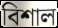
বিশাল